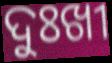
ଦୁଃଖୀ